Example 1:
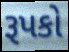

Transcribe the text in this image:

રૂપકો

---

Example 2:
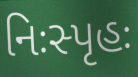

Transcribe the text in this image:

નિઃસ્પૃહઃ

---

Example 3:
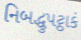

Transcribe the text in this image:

નિબદ્ધુપટ્ઠાકં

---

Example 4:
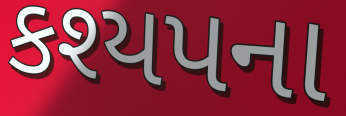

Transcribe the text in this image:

કશ્યપના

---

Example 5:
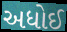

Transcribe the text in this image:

અધોઈ